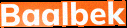
Baalbek